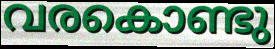
വരകൊണ്ടു